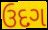
ઉદગ